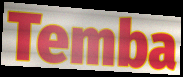
Temba